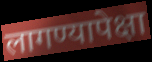
लागण्यापेक्षा